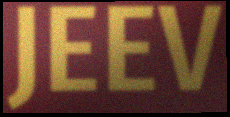
JEEV